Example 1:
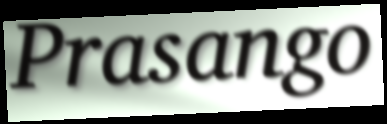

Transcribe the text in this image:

Prasango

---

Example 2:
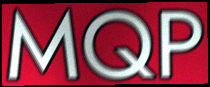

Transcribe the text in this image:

MQP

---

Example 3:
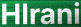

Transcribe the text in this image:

HIrani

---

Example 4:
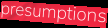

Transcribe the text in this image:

presumptions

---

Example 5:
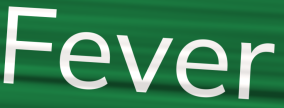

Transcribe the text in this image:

Fever